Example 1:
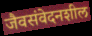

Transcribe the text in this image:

जैवसंवेदनशील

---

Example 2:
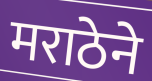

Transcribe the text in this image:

मराठेने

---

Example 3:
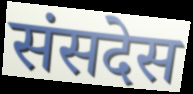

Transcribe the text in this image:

संसदेस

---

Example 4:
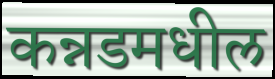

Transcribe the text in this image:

कन्नडमधील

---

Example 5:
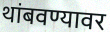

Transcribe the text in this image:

थांबवण्यावर